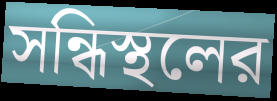
সন্ধিস্থলের